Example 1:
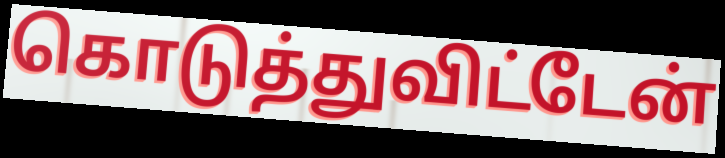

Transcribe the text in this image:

கொடுத்துவிட்டேன்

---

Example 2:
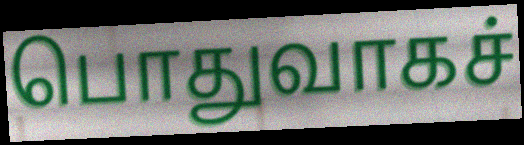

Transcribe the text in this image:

பொதுவாகச்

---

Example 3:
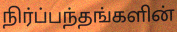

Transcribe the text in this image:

நிர்ப்பந்தங்களின்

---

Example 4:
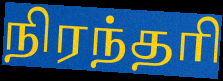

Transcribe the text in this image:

நிரந்தரி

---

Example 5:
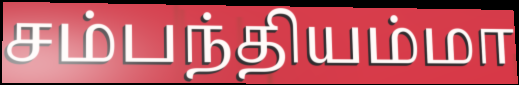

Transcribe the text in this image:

சம்பந்தியம்மா